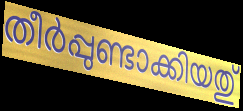
തീർപ്പുണ്ടാക്കിയതു്